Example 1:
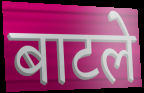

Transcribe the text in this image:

बाटले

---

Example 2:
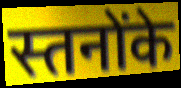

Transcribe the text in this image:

स्तनोंके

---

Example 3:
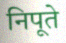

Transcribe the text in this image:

निपूते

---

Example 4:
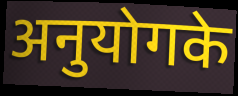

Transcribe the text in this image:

अनुयोगके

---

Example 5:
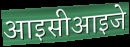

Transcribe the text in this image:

आइसीआइजे